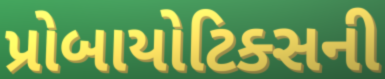
પ્રોબાયોટિક્સની